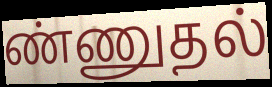
ண்ணுதல்